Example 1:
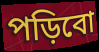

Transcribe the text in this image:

পড়িবো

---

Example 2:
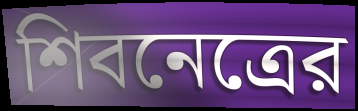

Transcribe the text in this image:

শিবনেত্রের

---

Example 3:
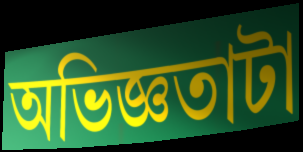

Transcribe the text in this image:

অভিজ্ঞতাটা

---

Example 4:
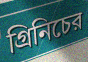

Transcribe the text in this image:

গ্রিনিচের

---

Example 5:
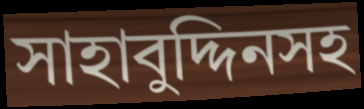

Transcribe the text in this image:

সাহাবুদ্দিনসহ